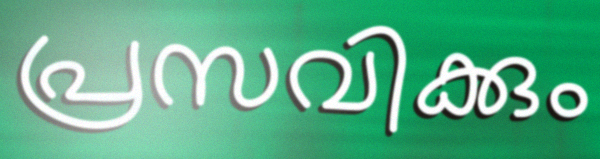
പ്രസവിക്കും